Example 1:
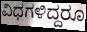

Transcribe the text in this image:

ವಿಧಗಳಿದ್ದರೂ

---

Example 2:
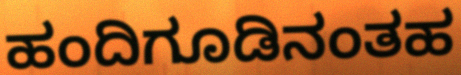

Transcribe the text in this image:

ಹಂದಿಗೂಡಿನಂತಹ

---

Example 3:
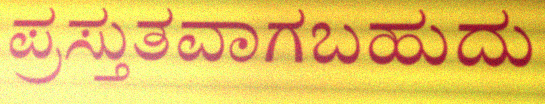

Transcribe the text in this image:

ಪ್ರಸ್ತುತವಾಗಬಹುದು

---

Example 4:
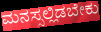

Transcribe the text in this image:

ಮನಸ್ಸಲ್ಲಿಡಬೇಕು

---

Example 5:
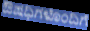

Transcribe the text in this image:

ಔಷಧಿಗಳೊಂದಿಗೆ